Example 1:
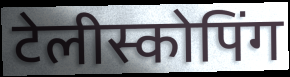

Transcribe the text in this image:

टेलीस्कोपिंग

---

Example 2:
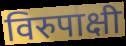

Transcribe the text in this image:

विरुपाक्षी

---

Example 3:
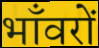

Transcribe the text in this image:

भाँवरों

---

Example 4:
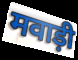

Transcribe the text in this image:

मवाड़ी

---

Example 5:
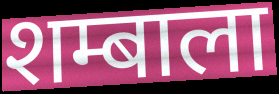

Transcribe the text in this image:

शम्बाला